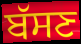
ਬੱਸਣ